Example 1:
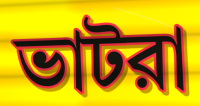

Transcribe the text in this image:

ভাটরা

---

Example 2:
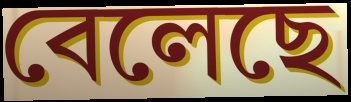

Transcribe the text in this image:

বেলেছে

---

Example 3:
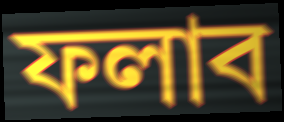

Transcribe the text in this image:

ফলাব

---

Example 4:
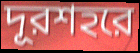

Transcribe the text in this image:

দূরশহরে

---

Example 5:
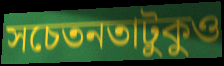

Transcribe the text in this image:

সচেতনতাটুকুও